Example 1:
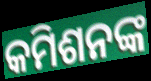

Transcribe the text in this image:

କମିଶନଙ୍କ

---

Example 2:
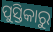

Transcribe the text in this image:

ପୁସ୍ତିକାରୁ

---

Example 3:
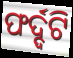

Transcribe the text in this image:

ଫର୍ଦ୍ଦଟି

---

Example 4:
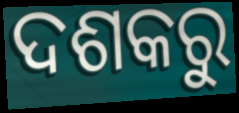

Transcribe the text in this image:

ଦଶକରୁ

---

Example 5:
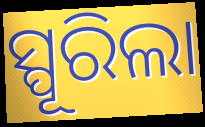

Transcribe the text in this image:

ସ୍ପୂରିଲା